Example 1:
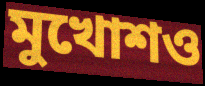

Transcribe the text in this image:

মুখোশও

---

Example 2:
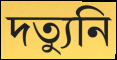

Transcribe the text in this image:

দত্যুনি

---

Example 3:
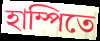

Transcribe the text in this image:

হাম্পিতে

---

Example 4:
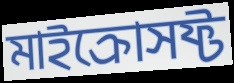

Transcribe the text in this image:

মাইক্রোসফ্ট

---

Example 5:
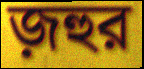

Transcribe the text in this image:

জ়হুর